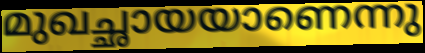
മുഖച്ഛായയാണെന്നു